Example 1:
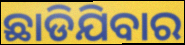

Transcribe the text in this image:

ଛାଡିଯିବାର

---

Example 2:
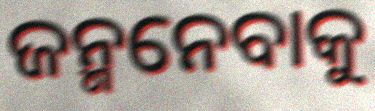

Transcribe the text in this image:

ଜନ୍ମନେବାକୁ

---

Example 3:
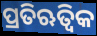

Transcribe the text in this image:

ପ୍ରତିଋତ୍ୱିକ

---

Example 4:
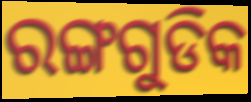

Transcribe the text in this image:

ରଙ୍ଗଗୁଡିକ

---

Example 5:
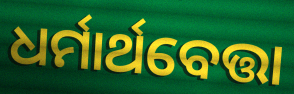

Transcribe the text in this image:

ଧର୍ମାର୍ଥବେତ୍ତା